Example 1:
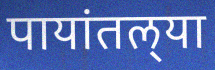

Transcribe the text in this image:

पायांतल्या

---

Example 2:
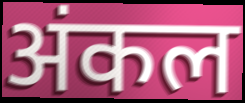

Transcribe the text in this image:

अंकल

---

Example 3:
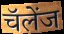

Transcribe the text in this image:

चॅलेंज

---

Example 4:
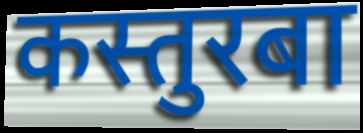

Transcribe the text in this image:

कस्तुरबा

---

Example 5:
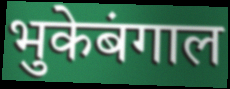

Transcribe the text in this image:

भुकेबंगाल